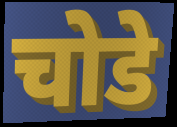
चोडे